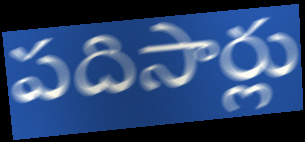
పదిసార్లు